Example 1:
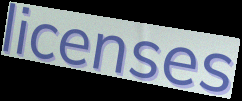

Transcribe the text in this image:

licenses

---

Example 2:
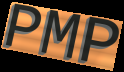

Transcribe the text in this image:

PMP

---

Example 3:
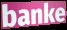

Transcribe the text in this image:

banke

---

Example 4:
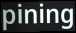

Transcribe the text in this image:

pining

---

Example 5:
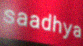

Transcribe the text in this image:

saadhya